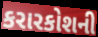
કરારકોશની